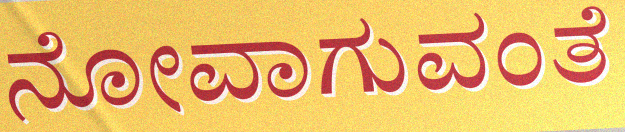
ನೋವಾಗುವಂತೆ